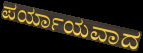
ಪರ್ಯಾಯವಾದ